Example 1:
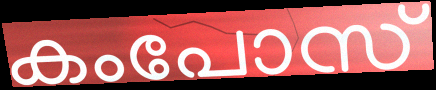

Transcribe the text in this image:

കംപോസ്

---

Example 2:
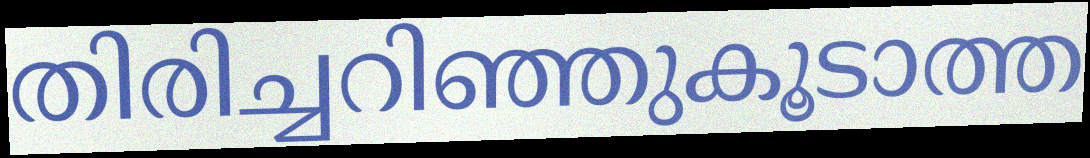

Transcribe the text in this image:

തിരിച്ചറിഞ്ഞുകൂടാത്ത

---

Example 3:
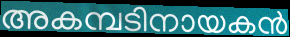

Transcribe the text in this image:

അകമ്പടിനായകൻ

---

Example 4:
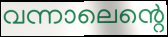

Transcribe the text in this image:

വന്നാലെന്റെ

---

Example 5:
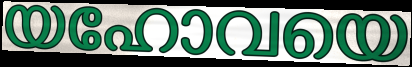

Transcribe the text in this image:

യഹോവയെ